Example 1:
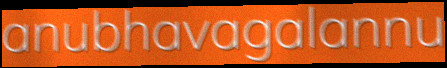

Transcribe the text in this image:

anubhavagalannu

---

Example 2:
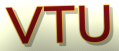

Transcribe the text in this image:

VTU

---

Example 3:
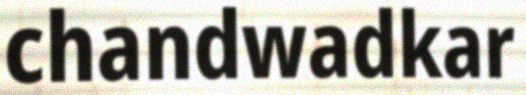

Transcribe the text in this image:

chandwadkar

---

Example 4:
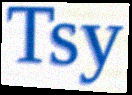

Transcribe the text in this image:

Tsy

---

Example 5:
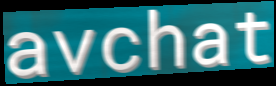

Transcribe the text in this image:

avchat